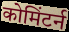
कोमिंटर्न